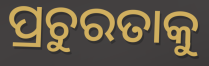
ପ୍ରଚୁରତାକୁ